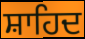
ਸ਼ਾਹਿਦ